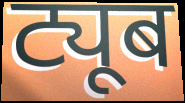
ट्यूब